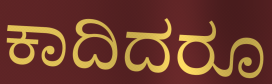
ಕಾದಿದರೂ